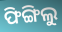
ଫିଙ୍ଗିଲୁ